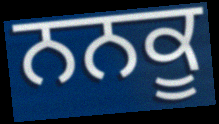
ਨਨਕੂ